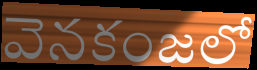
వెనకంజలో